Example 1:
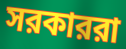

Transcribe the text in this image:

সরকাররা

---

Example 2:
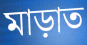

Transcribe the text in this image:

মাড়াত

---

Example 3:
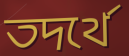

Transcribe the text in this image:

তদর্থে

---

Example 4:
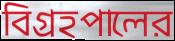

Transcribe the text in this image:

বিগ্রহপালের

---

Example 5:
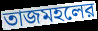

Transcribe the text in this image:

তাজমহলের